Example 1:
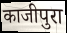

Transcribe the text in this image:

काजीपुरा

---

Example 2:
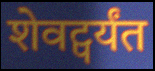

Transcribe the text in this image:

शेवट्पर्यंत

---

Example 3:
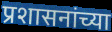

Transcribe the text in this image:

प्रशासनांच्या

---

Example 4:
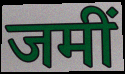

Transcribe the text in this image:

जमीं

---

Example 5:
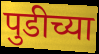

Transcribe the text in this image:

पुडीच्या